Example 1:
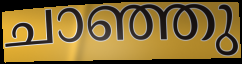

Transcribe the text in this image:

ചാഞ്ഞു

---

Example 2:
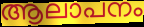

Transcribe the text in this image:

ആലാപനം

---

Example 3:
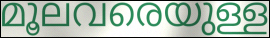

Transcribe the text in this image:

മൂലവരെയുള്ള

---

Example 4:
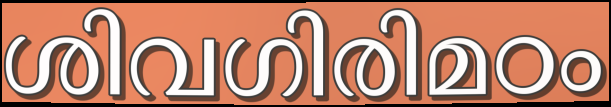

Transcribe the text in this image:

ശിവഗിരിമഠം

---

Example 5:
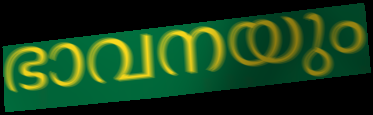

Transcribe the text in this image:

ഭാവനയും